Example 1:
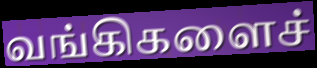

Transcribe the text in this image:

வங்கிகளைச்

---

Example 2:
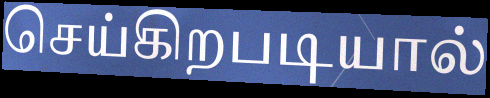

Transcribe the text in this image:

செய்கிறபடியால்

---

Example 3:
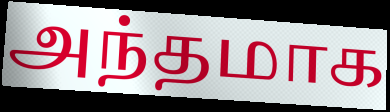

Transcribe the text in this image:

அந்தமாக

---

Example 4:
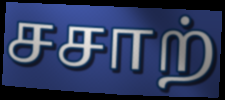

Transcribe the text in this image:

சசாற்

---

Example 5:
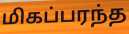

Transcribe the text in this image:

மிகப்பரந்த